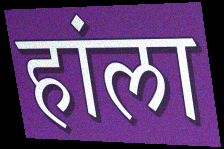
हांला